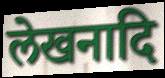
लेखनादि